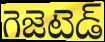
గెజెటెడ్